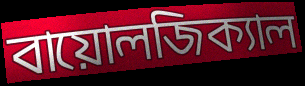
বায়োলজিক্যাল